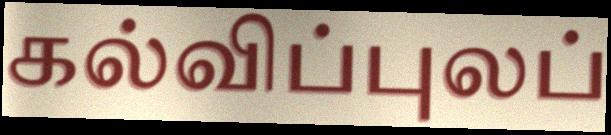
கல்விப்புலப்